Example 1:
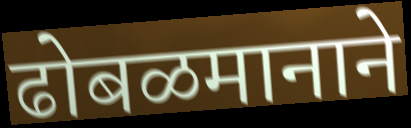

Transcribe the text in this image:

ढोबळमानाने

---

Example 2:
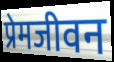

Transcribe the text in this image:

प्रेमजीवन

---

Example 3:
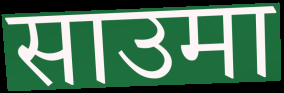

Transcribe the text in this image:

साउमा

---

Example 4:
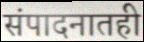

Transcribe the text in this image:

संपादनातही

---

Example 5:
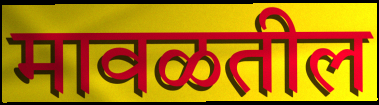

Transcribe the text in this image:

मावळतील